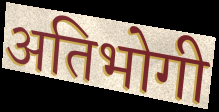
अतिभोगी